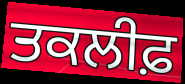
ਤਕਲੀਫ਼